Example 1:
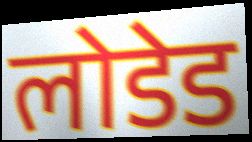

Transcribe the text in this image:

लोडेड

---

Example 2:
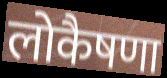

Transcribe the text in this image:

लोकैषणा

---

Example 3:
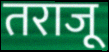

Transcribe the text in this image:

तराजू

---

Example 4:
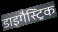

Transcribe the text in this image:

डाइगैस्ट्रिक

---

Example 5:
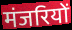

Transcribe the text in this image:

मंजरियों